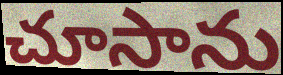
చూసాను